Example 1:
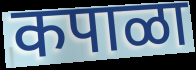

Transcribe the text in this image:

कपाळा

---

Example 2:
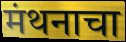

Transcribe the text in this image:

मंथनाचा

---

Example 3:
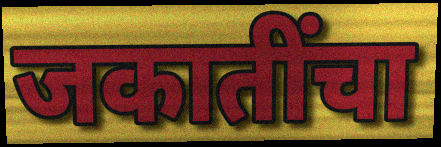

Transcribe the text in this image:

जकातींचा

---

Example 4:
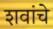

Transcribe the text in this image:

शवांचे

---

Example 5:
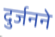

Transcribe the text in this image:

दुर्जनने